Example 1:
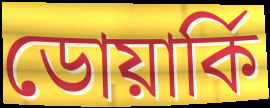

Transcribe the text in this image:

ডোয়ার্কি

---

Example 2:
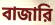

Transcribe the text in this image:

বাজারি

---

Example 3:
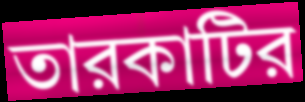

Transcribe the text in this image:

তারকাটির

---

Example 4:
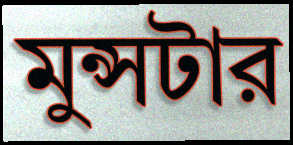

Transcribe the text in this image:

মুন্সটার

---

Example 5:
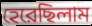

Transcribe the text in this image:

হেরেছিলাম